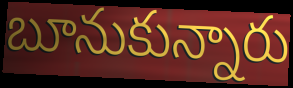
బూనుకున్నారు